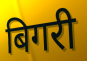
बिगरी